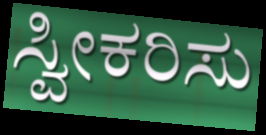
ಸ್ವೀಕರಿಸು